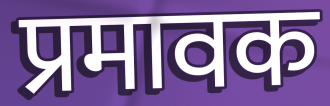
प्रमावक